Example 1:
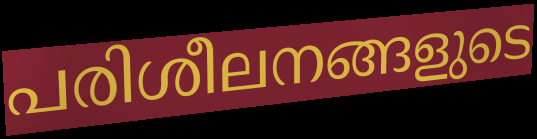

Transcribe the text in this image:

പരിശീലനങ്ങളുടെ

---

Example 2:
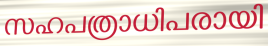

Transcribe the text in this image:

സഹപത്രാധിപരായി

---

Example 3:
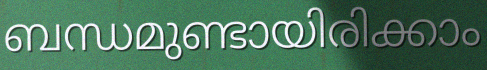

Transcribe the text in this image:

ബന്ധമുണ്ടായിരിക്കാം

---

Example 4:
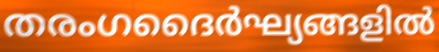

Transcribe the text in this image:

തരംഗദൈർഘ്യങ്ങളിൽ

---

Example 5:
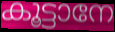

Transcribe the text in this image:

കൂട്ടാനേ